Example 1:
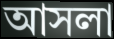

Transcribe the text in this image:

আসলা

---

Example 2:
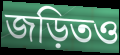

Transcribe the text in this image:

জড়িতও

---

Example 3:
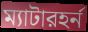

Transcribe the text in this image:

ম্যাটারহর্ন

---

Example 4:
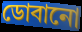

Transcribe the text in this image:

ডোবানো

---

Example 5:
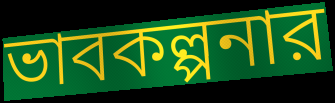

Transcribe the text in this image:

ভাবকল্পনার